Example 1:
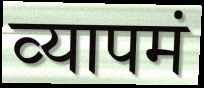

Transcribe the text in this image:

व्‍यापमं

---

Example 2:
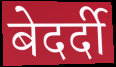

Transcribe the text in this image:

बेदर्दी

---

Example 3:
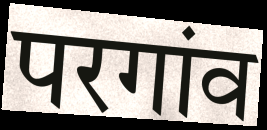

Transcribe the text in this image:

परगांव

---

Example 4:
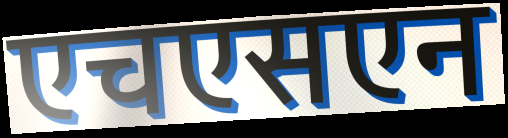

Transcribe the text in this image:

एचएसएन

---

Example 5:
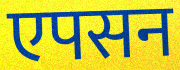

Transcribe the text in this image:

एपसन